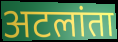
अटलांता